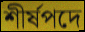
শীর্ষপদে